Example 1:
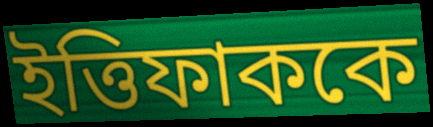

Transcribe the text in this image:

ইত্তিফাককে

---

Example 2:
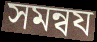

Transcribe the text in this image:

সমন্বয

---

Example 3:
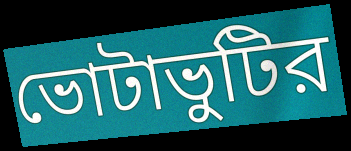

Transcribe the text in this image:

ভোটাভুটির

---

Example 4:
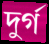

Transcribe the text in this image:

দুর্গ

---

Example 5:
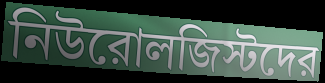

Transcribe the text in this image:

নিউরোলজিস্টদের